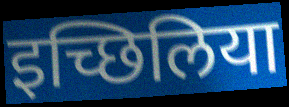
इच्छिलिया